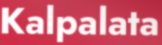
Kalpalata